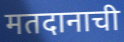
मतदानाची